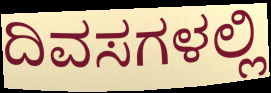
ದಿವಸಗಳಲ್ಲಿ